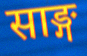
साङ्ग